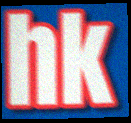
hk